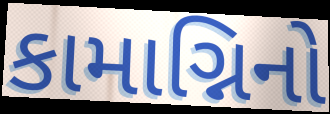
કામાગ્નિનો